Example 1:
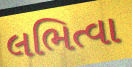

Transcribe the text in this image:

લભિત્વા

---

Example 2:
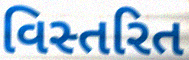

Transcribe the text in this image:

વિસ્તરિત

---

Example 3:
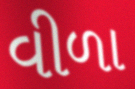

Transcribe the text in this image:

વીળા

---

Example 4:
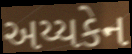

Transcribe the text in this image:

અય્યકેન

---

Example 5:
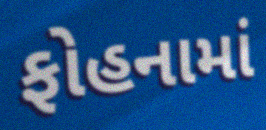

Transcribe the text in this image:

ફોહનામાં